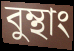
বুম্থাং